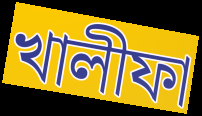
খালীফা